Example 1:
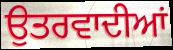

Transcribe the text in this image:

ਉਤਰਵਾਦੀਆਂ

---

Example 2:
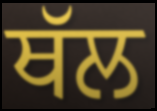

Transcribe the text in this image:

ਥੱਲ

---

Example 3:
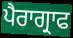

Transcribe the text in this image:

ਪੈਰਾਗ੍ਰਾਫ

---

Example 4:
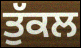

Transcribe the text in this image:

ਤੁੱਕਲ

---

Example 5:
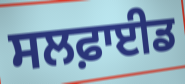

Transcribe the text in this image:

ਸਲਫ਼ਾਈਡ